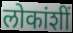
लोकांशीं